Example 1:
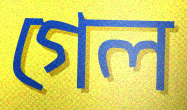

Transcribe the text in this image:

গেল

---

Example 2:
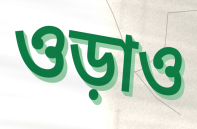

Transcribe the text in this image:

ওড়াও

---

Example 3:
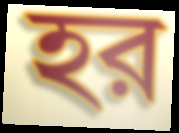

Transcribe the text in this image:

হর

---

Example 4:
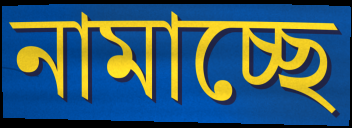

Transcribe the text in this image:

নামাচ্ছে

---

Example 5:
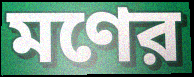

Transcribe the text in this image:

মণের